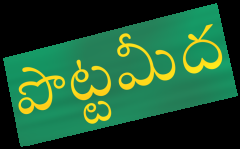
పొట్టమీద